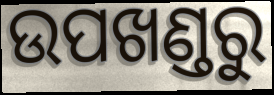
ଉପଖଣ୍ଡରୁ